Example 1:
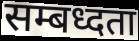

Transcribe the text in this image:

सम्बध्दता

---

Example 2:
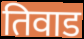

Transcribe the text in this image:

तिवाड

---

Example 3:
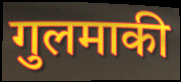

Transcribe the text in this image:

गुलमाकी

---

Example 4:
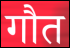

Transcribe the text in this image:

गौत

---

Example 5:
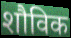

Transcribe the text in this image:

शौविक